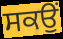
ਸਕਉਂ